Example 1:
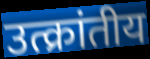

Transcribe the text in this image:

उत्क्रांतीय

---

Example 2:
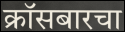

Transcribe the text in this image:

क्रॉसबारचा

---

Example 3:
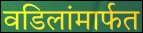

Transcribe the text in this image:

वडिलांमार्फत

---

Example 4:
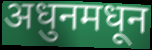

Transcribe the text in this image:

अधुनमधून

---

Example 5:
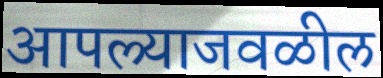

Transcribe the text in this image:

आपल्याजवळील